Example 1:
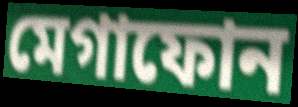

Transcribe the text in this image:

মেগাফোন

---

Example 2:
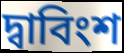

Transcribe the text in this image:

দ্বাবিংশ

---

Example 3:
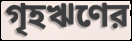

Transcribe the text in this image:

গৃহঋণের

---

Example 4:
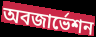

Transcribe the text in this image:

অবজার্ভেশন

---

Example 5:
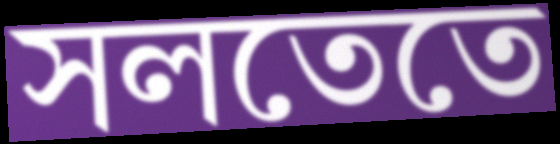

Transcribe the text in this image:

সলতেতে